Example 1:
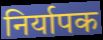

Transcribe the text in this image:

निर्यापक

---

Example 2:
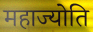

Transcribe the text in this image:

महाज्योति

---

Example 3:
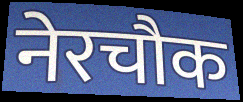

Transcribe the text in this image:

नेरचौक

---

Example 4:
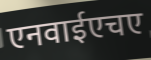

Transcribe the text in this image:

एनवाईएचए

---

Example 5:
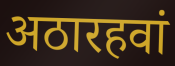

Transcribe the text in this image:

अठारहवां